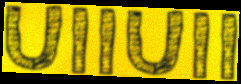
UIIUII